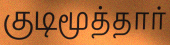
குடிமூத்தார்